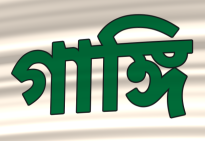
গাঙ্গি